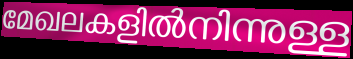
മേഖലകളിൽനിന്നുള്ള